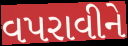
વપરાવીને